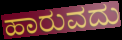
ಹಾರುವದು